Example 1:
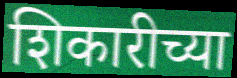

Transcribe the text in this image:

शिकारीच्या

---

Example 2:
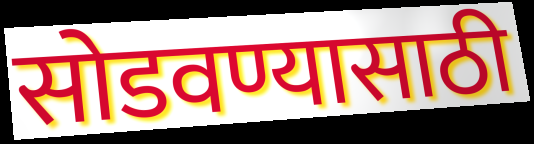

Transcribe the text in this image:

सोडवण्यासाठी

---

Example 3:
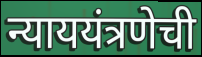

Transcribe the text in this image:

न्याययंत्रणेची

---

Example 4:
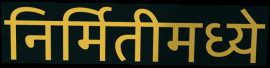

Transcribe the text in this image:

निर्मितीमध्ये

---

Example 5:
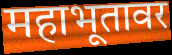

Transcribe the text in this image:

महाभूतावर